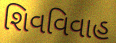
શિવવિવાહ